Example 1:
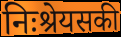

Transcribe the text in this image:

निःश्रेयसकी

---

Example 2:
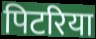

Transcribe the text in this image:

पिटरिया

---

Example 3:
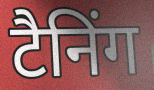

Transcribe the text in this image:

टैनिंग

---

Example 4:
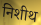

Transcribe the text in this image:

निशीथ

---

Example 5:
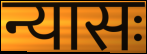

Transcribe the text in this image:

न्यासः